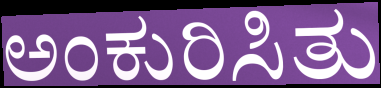
ಅಂಕುರಿಸಿತು